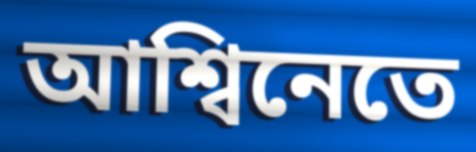
আশ্বিনেতে